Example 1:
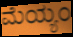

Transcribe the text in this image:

ಮೆಯ್ಯಂ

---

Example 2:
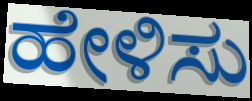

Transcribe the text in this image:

ಹೇಳಿಸು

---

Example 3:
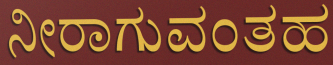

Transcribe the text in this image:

ನೀರಾಗುವಂತಹ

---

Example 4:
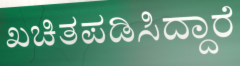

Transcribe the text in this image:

ಖಚಿತಪಡಿಸಿದ್ದಾರೆ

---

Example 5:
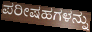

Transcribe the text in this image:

ಪರೀಷಹಗಳನ್ನು